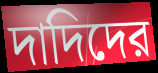
দাদিদের